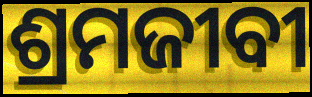
ଶ୍ରମଜୀବୀ